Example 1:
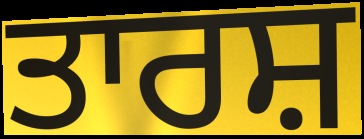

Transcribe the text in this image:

ਤਾਰਸ਼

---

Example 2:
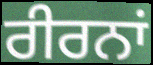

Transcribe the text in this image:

ਰੀਰਨਾਂ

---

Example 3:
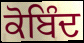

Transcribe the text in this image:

ਕੋਬਿੰਦ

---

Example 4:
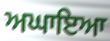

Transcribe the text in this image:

ਅਘਾਇਆ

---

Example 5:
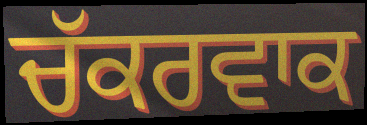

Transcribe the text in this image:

ਚੱਕਰਵਾਕ